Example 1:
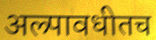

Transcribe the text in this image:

अल्पावधीतच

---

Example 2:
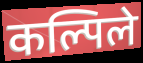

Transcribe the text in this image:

कल्पिले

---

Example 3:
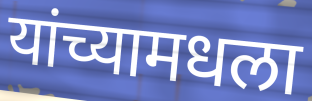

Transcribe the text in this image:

यांच्यामधला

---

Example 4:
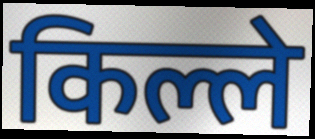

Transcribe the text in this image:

किल्ले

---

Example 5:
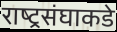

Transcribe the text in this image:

राष्ट्रसंघाकडे